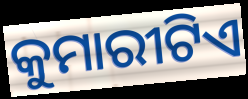
କୁମାରୀଟିଏ